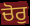
ਚੋਰੁ